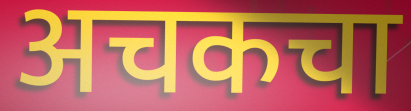
अचकचा